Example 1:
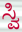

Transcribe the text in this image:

ಸ್ವಿ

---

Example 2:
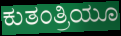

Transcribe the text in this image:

ಕುತಂತ್ರಿಯೂ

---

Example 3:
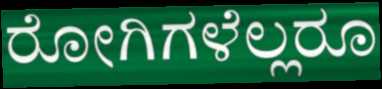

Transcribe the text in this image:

ರೋಗಿಗಳೆಲ್ಲರೂ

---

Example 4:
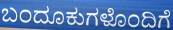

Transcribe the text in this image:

ಬಂದೂಕುಗಳೊಂದಿಗೆ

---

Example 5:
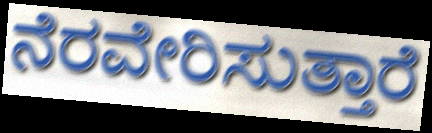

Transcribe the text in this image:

ನೆರವೇರಿಸುತ್ತಾರೆ